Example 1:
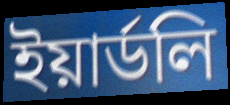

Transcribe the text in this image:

ইয়ার্ডলি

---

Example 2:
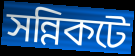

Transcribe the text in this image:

সন্নিকটে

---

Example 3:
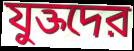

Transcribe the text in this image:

যুক্তদের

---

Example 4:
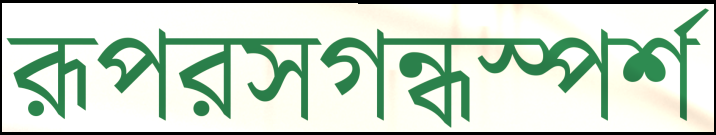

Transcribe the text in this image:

রূপরসগন্ধস্পর্শ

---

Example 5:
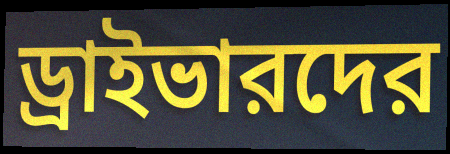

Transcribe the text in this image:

ড্রাইভারদের